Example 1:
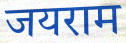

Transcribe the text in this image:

जयराम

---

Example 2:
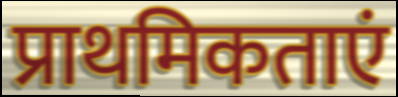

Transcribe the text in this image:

प्राथमिकताएं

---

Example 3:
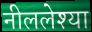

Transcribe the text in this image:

नीललेश्या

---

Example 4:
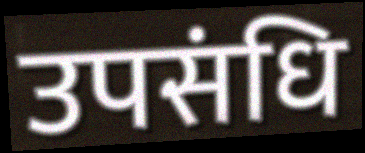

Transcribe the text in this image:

उपसंधि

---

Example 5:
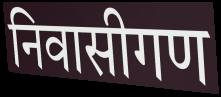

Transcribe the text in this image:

निवासीगण